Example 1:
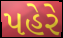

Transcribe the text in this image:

પહેરે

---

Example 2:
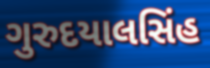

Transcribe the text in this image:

ગુરુદયાલસિંહ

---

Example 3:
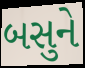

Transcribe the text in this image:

બસુને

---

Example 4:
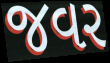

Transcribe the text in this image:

જવર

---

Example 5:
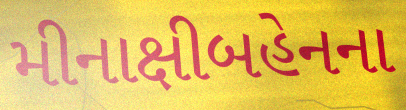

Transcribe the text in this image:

મીનાક્ષીબહેનના